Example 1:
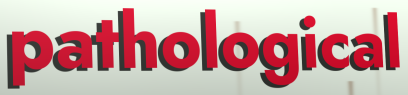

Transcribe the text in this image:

pathological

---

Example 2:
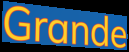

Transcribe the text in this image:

Grande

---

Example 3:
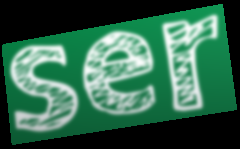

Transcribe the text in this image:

ser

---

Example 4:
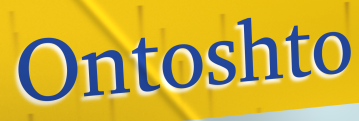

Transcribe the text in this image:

Ontoshto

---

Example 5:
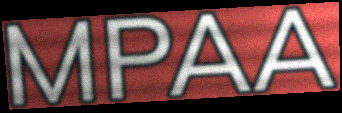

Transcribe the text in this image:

MPAA